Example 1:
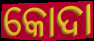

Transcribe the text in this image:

କୋଦା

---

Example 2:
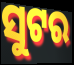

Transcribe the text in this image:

ସୁଟର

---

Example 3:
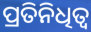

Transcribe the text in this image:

ପ୍ରତିନିଧିତ୍ୱ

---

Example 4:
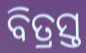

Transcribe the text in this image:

ବିତ୍ରସ୍ତ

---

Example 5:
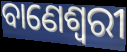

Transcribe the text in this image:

ବାଣେଶ୍ୱରୀ